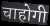
चाहोगी